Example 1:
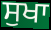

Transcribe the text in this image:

ਸੁਖਾ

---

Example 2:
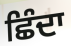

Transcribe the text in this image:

ਛਿੰਦਾ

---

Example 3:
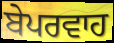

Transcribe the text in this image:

ਬੇਪਰਵਾਹ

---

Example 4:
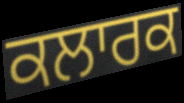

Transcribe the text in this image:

ਕਲਾਰਕ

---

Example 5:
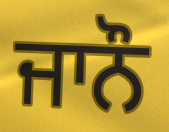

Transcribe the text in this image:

ਜਾਨੌ